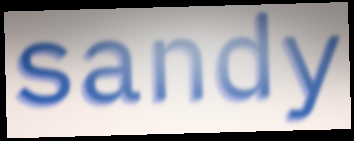
sandy